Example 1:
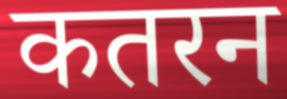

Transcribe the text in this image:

कतरन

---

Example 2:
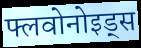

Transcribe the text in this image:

फ्लवोनोइड्स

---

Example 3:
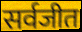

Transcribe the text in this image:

सर्वजीत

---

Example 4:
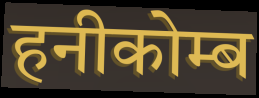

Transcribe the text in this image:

हनीकोम्ब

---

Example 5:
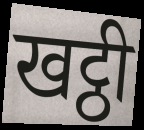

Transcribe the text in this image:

खट्ठी